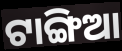
ଟାଙ୍ଗିଆ